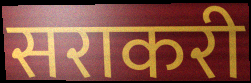
सराकरी